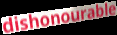
dishonourable